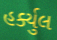
હર્ક્યુલ